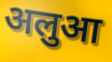
अलुआ